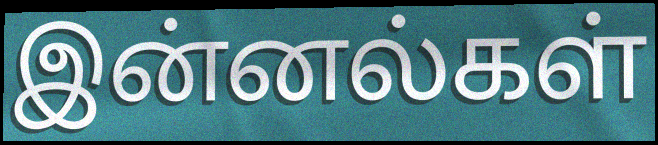
இன்னல்கள்